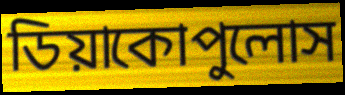
ডিয়াকোপুলোস